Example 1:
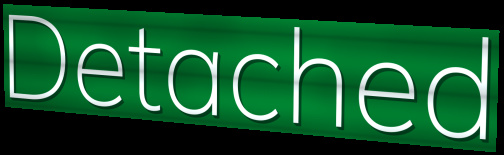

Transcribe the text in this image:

Detached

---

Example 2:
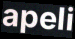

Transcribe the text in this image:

apeli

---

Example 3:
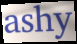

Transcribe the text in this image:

ashy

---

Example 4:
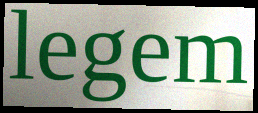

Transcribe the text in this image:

legem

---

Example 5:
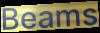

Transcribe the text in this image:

Beams